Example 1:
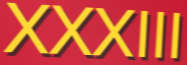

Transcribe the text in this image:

XXXIII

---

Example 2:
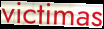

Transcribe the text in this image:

victimas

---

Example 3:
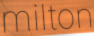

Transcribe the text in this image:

milton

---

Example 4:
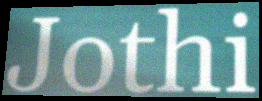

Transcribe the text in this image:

Jothi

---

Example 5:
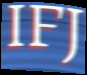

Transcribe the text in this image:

IFJ